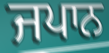
ਜਪਾਨ